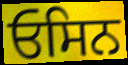
ਓਸਿਨ